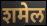
शमेल